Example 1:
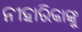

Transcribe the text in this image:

ନୀହାରିକାଙ୍କୁ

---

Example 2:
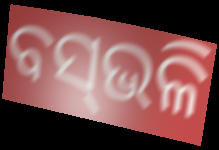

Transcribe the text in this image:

ବସ୍‌ଭଳି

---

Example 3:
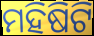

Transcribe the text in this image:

ମହିଷିଟି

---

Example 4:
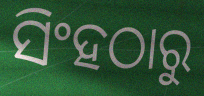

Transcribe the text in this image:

ସିଂହଠାରୁ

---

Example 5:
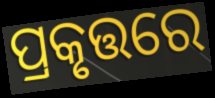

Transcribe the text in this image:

ପ୍ରକୃତ୍ତରେ